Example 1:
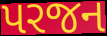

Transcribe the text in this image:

પરજન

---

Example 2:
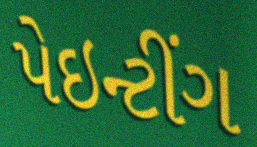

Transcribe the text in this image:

પેઇન્ટીંગ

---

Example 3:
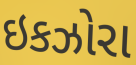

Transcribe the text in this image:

ઇકઝોરા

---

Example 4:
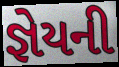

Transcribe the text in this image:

જ્ઞેયની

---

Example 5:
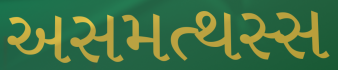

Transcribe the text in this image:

અસમત્થસ્સ